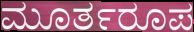
ಮೂರ್ತರೂಪ